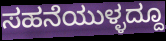
ಸಹನೆಯುಳ್ಳದ್ದೂ